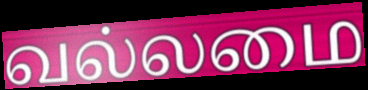
வல்லமை